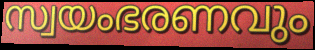
സ്വയംഭരണവും